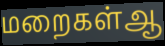
மறைகள்ஆ